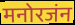
मनोरजंन